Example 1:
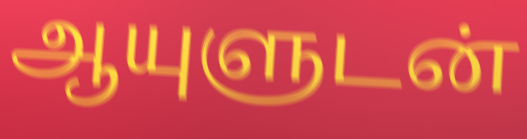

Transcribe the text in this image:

ஆயுளுடன்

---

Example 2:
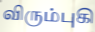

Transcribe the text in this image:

விரும்புகி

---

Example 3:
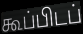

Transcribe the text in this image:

கூப்பிடப்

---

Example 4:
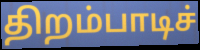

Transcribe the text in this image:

திறம்பாடிச்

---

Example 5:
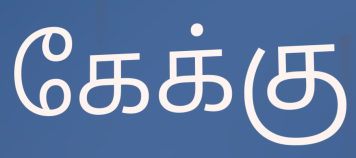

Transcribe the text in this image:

கேக்கு